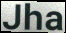
Jha